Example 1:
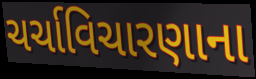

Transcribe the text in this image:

ચર્ચાવિચારણાના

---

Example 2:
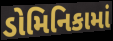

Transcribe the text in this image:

ડોમિનિકામાં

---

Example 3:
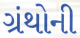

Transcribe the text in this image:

ગ્રંથોની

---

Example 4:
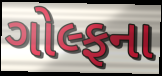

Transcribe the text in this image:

ગોલ્ફના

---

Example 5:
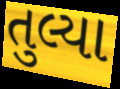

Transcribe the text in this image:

તુલ્યા